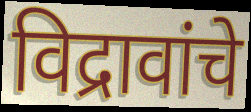
विद्रावांचे